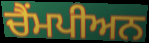
ਚੈਂਮਪੀਅਨ